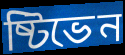
ষ্টিভেন